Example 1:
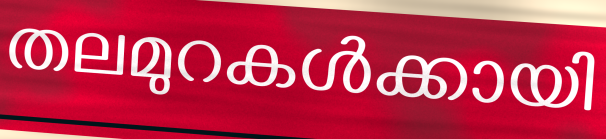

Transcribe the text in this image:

തലമുറകൾക്കായി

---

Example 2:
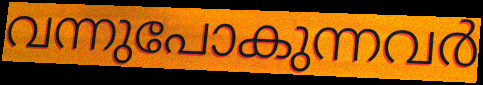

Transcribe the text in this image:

വന്നുപോകുന്നവർ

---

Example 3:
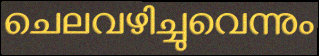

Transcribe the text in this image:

ചെലവഴിച്ചുവെന്നും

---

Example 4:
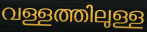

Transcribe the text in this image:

വള്ളത്തിലുള്ള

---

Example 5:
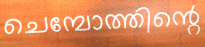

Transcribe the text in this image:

ചെമ്പോത്തിന്റെ